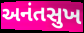
અનંતસુખ